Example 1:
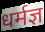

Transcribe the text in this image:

धर्मज्ञ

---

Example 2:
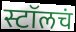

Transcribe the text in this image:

स्टॉलचं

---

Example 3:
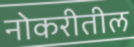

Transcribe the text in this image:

नोकरीतील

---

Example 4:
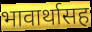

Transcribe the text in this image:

भावार्थासह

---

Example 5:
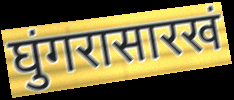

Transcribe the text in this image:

घुंगरासारखं